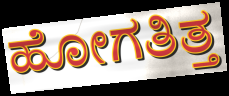
ಹೋಗತಿತ್ತ